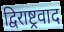
द्विराष्ट्रवाद